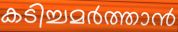
കടിച്ചമർത്താൻ